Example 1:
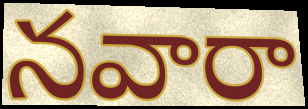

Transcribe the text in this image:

నవారా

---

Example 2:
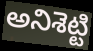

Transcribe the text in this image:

అనిశెట్టి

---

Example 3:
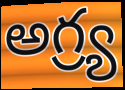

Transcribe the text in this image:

అగ్ర్య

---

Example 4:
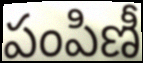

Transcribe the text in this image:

పంపిణీ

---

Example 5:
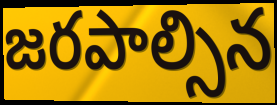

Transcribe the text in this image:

జరపాల్సిన